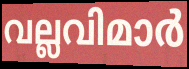
വല്ലവിമാർ